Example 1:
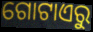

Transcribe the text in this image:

ଗୋଟାଏରୁ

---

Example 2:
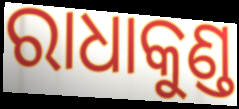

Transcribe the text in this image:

ରାଧାକୁଣ୍ଡ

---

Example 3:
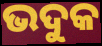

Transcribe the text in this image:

ଭଦୁକ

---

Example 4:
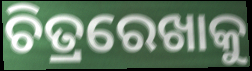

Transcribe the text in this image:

ଚିତ୍ରରେଖାକୁ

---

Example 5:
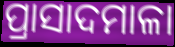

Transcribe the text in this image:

ପ୍ରାସାଦମାଳା